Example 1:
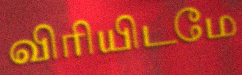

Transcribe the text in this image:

விரியிடமே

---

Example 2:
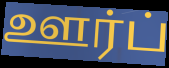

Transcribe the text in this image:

ஊர்ப்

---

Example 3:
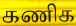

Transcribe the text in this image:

கணிக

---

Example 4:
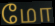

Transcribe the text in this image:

மோ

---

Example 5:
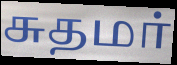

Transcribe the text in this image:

சுதமர்